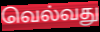
வெல்வது